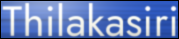
Thilakasiri